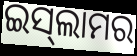
ଇସ୍‍ଲାମର